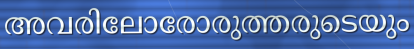
അവരിലോരോരുത്തരുടെയും